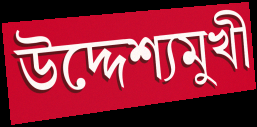
উদ্দেশ্যমুখী